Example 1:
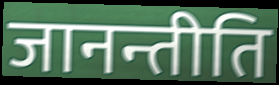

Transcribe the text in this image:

जानन्तीति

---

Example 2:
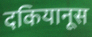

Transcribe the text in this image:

दकियानूस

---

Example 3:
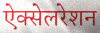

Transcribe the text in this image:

ऐक्सेलरेशन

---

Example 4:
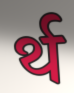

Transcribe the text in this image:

र्थ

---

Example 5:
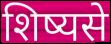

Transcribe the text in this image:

शिष्यसे